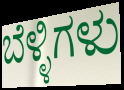
ಬೆಳ್ಳಿಗಳು